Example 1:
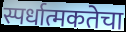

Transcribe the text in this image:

स्पर्धात्मकतेचा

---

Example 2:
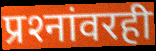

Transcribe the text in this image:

प्रश्नांवरही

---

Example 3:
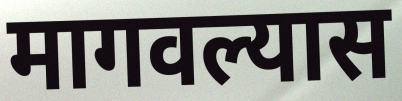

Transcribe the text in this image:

मागवल्यास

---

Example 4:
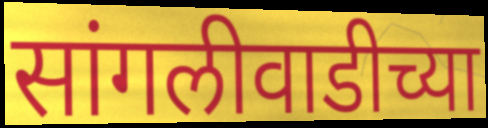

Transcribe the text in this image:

सांगलीवाडीच्या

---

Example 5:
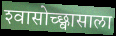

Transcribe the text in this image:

श्वासोच्छ्वासाला